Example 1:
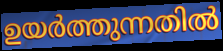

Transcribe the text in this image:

ഉയർത്തുന്നതിൽ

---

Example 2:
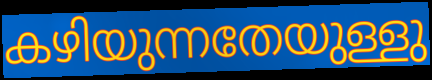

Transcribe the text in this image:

കഴിയുന്നതേയുള്ളു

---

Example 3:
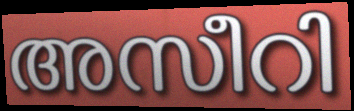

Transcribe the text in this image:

അസീറി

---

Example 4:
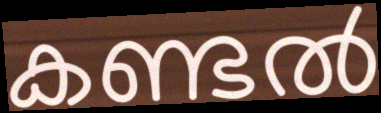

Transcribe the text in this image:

കണ്ടൽ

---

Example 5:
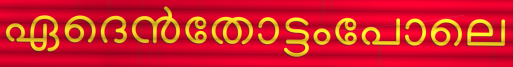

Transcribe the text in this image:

ഏദെൻതോട്ടംപോലെ